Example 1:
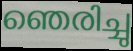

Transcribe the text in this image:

ഞെരിച്ചു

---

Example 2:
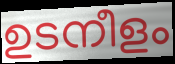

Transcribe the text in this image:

ഉടനീളം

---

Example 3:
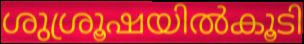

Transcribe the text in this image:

ശുശ്രൂഷയിൽകൂടി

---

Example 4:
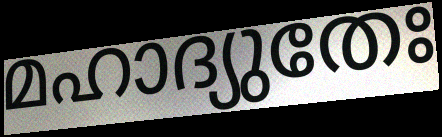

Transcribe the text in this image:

മഹാദ്യുതേഃ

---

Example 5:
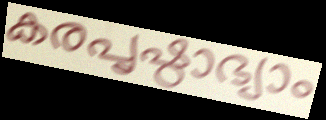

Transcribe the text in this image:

കരപൃഷ്ഠാഭ്യാം